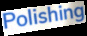
Polishing